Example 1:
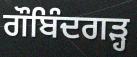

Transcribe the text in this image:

ਗੌਬਿੰਦਗੜ੍ਹ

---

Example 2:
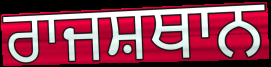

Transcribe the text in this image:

ਰਾਜਸ਼ਥਾਨ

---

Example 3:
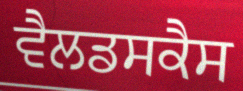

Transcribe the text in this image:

ਵੈਲਡਸਕੈਸ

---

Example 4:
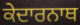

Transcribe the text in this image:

ਕੇਦਾਰਨਾਥ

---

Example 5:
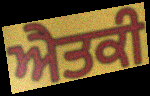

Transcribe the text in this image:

ਐਤਕੀ